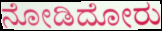
ನೋಡಿದೋರು